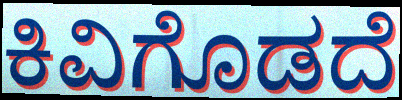
ಕಿವಿಗೊಡದೆ